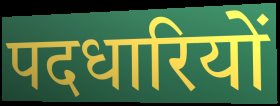
पदधारियों